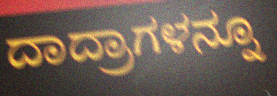
ದಾದ್ರಾಗಳನ್ನೂ